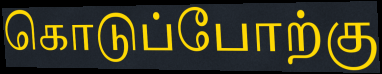
கொடுப்போற்கு